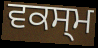
ਵਕਸ੍ਮ